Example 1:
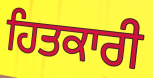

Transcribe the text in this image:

ਹਿਤਕਾਰੀ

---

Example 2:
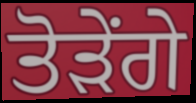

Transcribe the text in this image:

ਤੋੜੇਂਗੇ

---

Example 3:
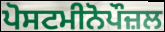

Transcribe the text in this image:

ਪੋਸਟਮੀਨੋਪੌਜ਼ਲ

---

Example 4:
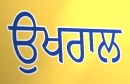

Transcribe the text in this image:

ਉਖਰਾਲ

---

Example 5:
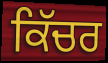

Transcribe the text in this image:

ਕਿੱਚਰ